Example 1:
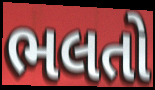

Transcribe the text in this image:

ભલતો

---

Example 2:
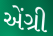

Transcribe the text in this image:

એંગ્રી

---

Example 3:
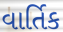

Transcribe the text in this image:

વાર્તિક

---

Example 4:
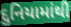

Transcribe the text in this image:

દુનિયામાંથી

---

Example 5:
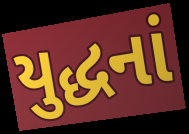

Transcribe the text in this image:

યુદ્ધનાં